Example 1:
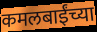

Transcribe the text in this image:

कमलबाईंच्या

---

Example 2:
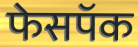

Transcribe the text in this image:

फेसपॅक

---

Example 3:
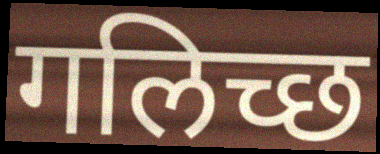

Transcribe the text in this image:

गलिच्छ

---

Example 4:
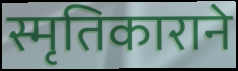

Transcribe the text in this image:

स्मृतिकाराने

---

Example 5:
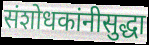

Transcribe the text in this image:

संशोधकांनीसुद्धा